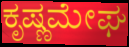
ಕೃಷ್ಣಮೇಘ